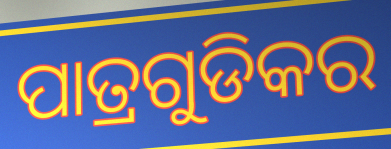
ପାତ୍ରଗୁଡିକର